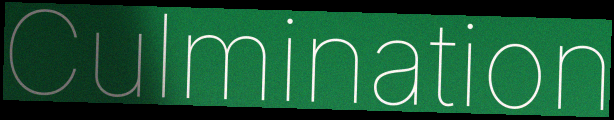
Culmination